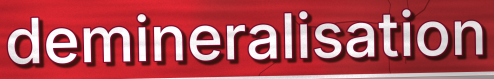
demineralisation